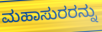
ಮಹಾಸುರರನ್ನು